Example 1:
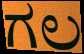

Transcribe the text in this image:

ಗಲ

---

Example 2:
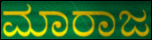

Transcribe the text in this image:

ಮಾರಾಜ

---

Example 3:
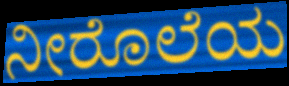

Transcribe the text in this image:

ನೀರೊಲೆಯ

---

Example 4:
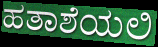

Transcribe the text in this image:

ಹತಾಶೆಯಲಿ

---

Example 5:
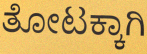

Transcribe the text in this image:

ತೋಟಕ್ಕಾಗಿ